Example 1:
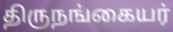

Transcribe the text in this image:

திருநங்கையர்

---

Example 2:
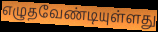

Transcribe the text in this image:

எழுதவேண்டியுள்ளது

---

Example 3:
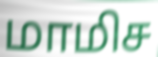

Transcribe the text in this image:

மாமிச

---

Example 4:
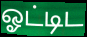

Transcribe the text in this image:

ஓட்டிட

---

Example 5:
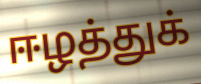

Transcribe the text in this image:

ஈழத்துக்